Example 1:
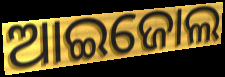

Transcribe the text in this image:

ଆଇଜୋଲ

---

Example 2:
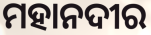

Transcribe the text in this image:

ମହାନଦୀର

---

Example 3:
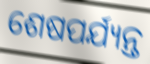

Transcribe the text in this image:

ଶେଷପର୍ଯ୍ୟନ୍ତ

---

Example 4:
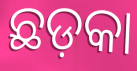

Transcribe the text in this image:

ଛଡ଼କା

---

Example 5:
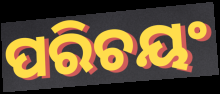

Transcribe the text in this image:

ପରିଚୟଂ